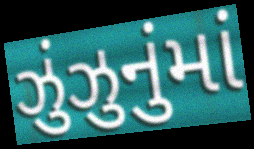
ઝુંઝુનુંમાં